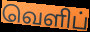
வெளிப்